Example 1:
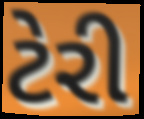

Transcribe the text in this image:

ટેરી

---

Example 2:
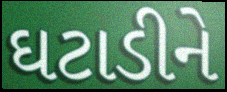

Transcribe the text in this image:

ઘટાડીને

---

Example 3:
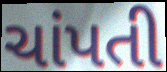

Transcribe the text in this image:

ચાંપતી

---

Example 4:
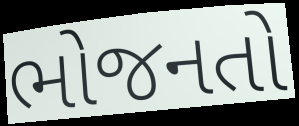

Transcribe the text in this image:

ભોજનતો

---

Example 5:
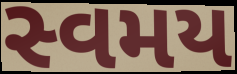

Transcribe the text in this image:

સ્વમય